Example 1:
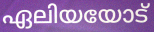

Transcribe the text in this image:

ഏലിയയോട്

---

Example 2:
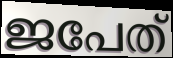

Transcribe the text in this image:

ജപേത്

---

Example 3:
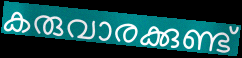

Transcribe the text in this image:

കരുവാരക്കുണ്ട്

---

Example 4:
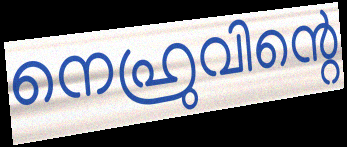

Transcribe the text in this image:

നെഹ്രുവിന്റെ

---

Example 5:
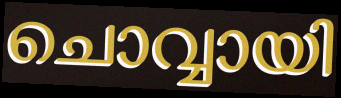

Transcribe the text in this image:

ചൊവ്വായി